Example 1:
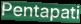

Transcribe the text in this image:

Pentapati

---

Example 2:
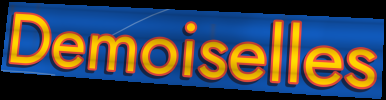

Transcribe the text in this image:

Demoiselles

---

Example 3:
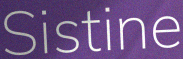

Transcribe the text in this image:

Sistine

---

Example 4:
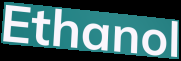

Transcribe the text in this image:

Ethanol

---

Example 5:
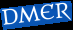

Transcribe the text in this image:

DMER